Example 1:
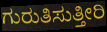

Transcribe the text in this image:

ಗುರುತಿಸುತ್ತೀರಿ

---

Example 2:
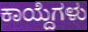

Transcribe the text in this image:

ಕಾಯ್ದೆಗಳು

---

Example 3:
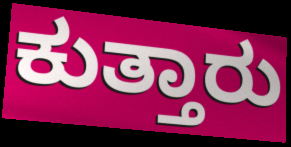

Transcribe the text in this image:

ಕುತ್ತಾರು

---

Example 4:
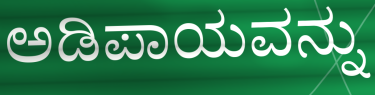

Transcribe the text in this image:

ಅಡಿಪಾಯವನ್ನು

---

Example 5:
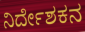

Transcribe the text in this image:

ನಿರ್ದೇಶಕನ